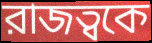
রাজত্বকে